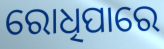
ରୋଧିପାରେ